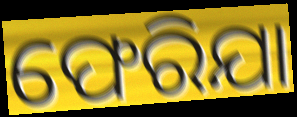
ଫେରିଯା